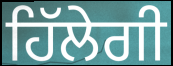
ਹਿੱਲੇਗੀ